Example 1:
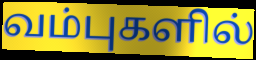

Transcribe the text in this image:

வம்புகளில்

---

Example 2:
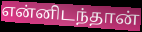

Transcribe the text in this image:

என்னிடந்தான்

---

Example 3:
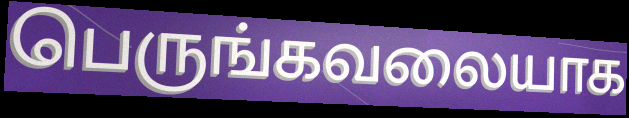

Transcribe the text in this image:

பெருங்கவலையாக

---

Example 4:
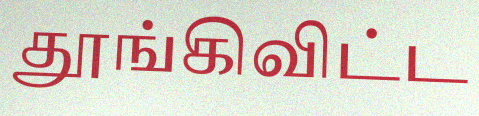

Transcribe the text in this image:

தூங்கிவிட்ட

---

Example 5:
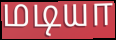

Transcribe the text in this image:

மடியா